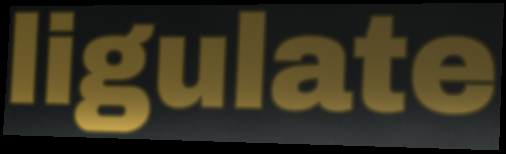
ligulate